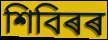
শিবিৰৰ